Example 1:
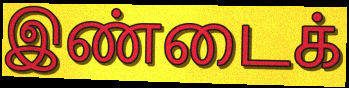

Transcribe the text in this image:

இண்டைக்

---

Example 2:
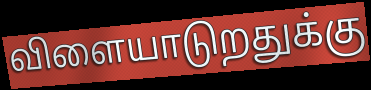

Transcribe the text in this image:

விளையாடுறதுக்கு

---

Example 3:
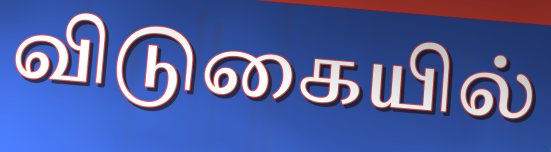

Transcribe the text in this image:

விடுகையில்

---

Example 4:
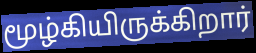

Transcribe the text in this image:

மூழ்கியிருக்கிறார்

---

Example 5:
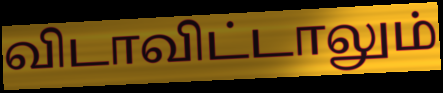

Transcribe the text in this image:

விடாவிட்டாலும்